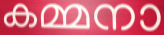
കമ്മനാ